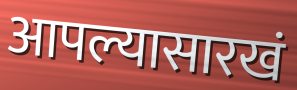
आपल्यासारखं